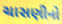
ચાસણીનો